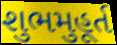
શુભમુહૂર્ત